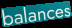
balances